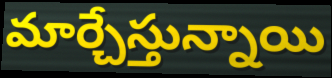
మార్చేస్తున్నాయి